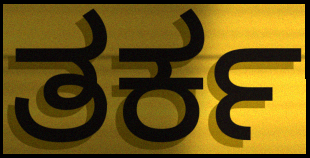
ತರ್ಕ